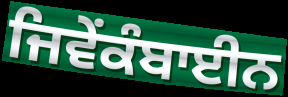
ਜਿਵੇਂਕੰਬਾਈਨ